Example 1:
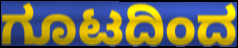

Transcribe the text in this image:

ಗೂಟದಿಂದ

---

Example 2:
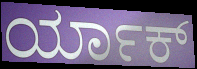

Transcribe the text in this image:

ರ್ಯಾಕ್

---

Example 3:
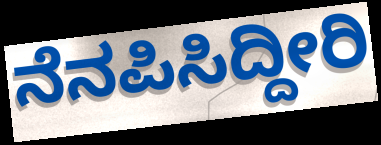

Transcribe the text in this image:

ನೆನಪಿಸಿದ್ದೀರಿ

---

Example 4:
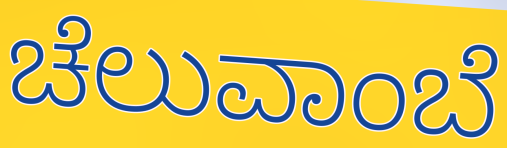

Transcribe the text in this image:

ಚೆಲುವಾಂಬೆ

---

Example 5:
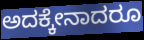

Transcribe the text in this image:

ಅದಕ್ಕೇನಾದರೂ